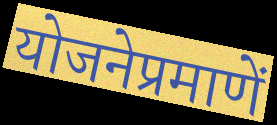
योजनेप्रमाणें